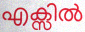
എക്സിൽ